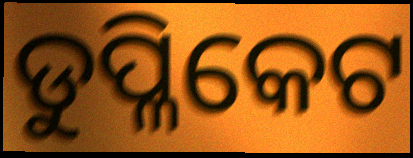
ଡୁପ୍ଳିକେଟ